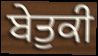
ਬੇਤੁਕੀ